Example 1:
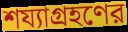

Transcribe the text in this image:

শয্যাগ্রহণের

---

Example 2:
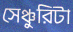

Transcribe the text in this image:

সেঞ্চুরিটা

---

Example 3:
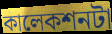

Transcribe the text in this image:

কালেকশনটা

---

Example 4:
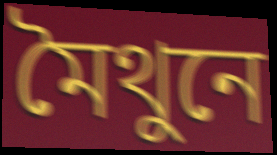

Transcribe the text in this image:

মৈথুনে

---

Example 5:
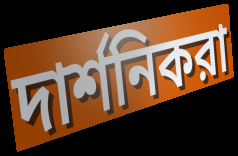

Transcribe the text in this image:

দার্শনিকরা